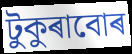
টুকুৰাবোৰ